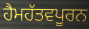
ਹੈਮਹੱਤਵਪੂਰਨ